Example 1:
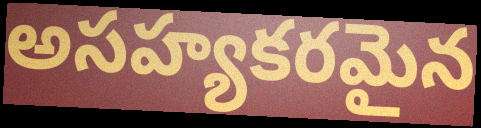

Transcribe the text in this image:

అసహ్యకరమైన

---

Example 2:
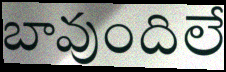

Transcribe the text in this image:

బావుందిలే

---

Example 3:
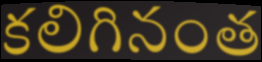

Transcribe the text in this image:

కలిగినంత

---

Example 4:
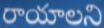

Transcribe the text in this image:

రాయాలని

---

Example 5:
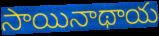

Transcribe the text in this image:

సాయినాథాయ